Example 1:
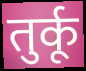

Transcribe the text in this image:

तुर्कू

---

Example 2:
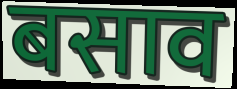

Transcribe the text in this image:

बसाव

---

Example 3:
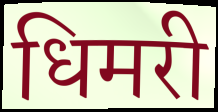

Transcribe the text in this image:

धिमरी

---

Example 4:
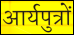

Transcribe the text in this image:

आर्यपुत्रों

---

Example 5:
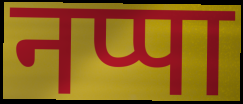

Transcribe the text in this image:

नप्पा